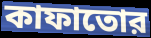
কাফাতোর